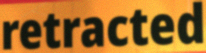
retracted